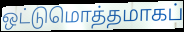
ஒட்டுமொத்தமாகப்